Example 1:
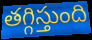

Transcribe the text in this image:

తగ్గిస్తుంది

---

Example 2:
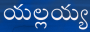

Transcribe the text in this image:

యల్లయ్య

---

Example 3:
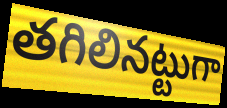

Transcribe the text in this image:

తగిలినట్టుగా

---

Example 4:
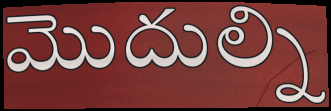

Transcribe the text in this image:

మొదుల్ని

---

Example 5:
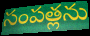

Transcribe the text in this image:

సంపత్లను